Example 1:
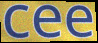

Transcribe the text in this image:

cee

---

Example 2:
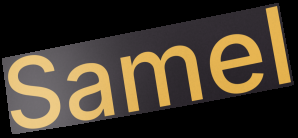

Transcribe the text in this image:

Samel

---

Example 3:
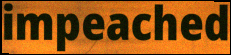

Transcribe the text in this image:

impeached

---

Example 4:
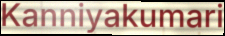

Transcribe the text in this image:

Kanniyakumari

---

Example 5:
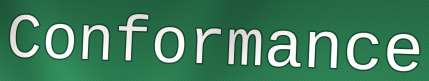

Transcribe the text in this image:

Conformance